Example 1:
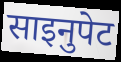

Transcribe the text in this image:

साइनुपेट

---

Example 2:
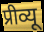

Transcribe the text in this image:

प्रीव्यू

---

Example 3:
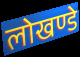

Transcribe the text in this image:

लोखण्डे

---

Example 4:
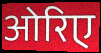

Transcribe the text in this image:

ओरिए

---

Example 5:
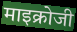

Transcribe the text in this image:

माइक्रोजी